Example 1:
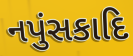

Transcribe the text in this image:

નપુંસકાદિ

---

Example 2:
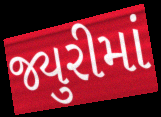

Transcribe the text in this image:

જ્યુરીમાં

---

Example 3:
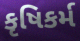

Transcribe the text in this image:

કૃષિકર્મ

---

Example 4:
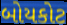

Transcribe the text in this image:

બોયકોટ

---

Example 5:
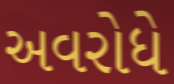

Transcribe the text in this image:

અવરોધે